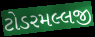
ટોડરમલ્લજી